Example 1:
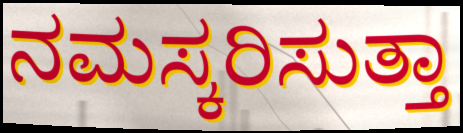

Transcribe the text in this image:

ನಮಸ್ಕರಿಸುತ್ತಾ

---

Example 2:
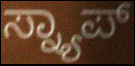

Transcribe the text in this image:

ಸ್ನ್ಯಾಪ್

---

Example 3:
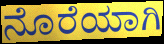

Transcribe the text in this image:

ನೊರೆಯಾಗಿ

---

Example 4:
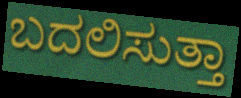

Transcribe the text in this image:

ಬದಲಿಸುತ್ತಾ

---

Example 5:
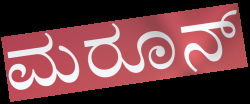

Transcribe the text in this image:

ಮರೂನ್